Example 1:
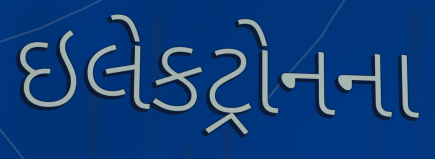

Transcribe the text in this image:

ઇલેકટ્રોનના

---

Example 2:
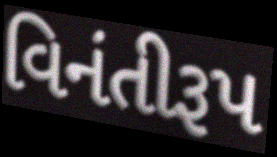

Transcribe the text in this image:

વિનંતીરૂપ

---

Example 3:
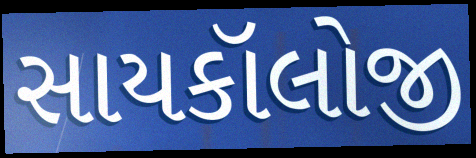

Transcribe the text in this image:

સાયકૉલોજી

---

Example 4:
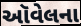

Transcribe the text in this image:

ઑવેલના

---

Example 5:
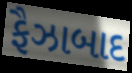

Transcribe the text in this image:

ફૈઝાબાદ